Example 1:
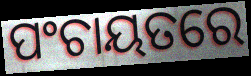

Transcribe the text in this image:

ପଂଚାୟତରେ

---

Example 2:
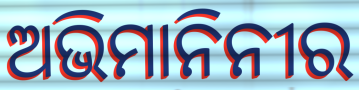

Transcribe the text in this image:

ଅଭିମାନିନୀର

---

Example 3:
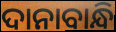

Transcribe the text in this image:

ଦାନାବାନ୍ଧି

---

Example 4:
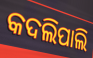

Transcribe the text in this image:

କଦଲିପାଲି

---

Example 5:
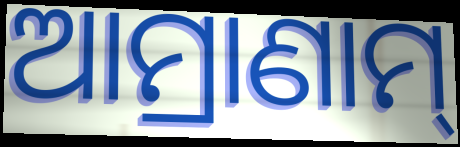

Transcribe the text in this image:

ଆମ୍ରାଣାମ୍